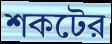
শকটের